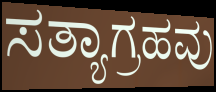
ಸತ್ಯಾಗ್ರಹವು